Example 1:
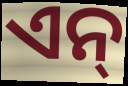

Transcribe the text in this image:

ଏନ୍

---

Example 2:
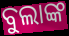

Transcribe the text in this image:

ବୁଲାଙ୍କ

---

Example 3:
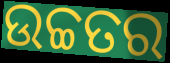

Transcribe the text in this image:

ଉଚ୍ଚତର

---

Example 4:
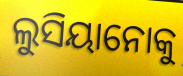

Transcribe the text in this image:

ଲୁସିୟାନୋକୁ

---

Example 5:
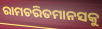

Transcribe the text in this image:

ରାମଚରିତମାନସକୁ